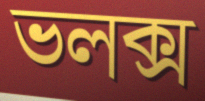
ভলক্স